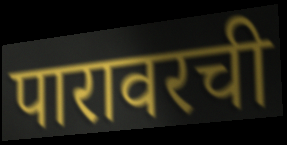
पारावरची